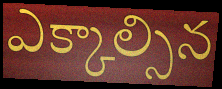
ఎక్కాల్సిన